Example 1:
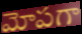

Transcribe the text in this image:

మోపగా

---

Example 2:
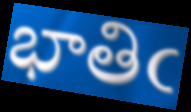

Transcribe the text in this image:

భాతిఁ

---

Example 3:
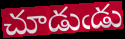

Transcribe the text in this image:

చూడుఁడు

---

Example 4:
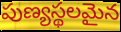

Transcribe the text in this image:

పుణ్యస్థలమైన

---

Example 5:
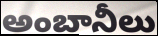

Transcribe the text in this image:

అంబానీలు